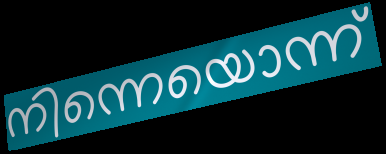
നിന്നെയൊന്ന്